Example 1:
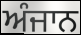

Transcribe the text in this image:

ਅੰਜਾਨ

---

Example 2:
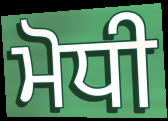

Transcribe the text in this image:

ਮੋਧੀ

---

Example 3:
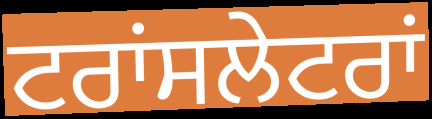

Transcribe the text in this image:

ਟਰਾਂਸਲੇਟਰਾਂ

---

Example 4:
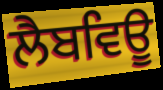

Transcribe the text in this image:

ਲੈਬਵਿਊ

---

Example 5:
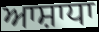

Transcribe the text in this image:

ਆਸ਼ਾਧਾ